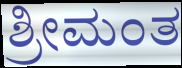
ಶ್ರೀಮಂತ